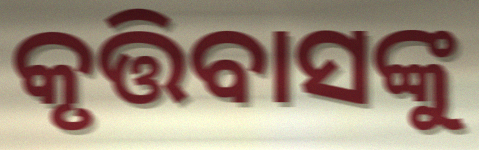
କୃତ୍ତିବାସଙ୍କୁ